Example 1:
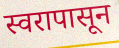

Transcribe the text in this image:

स्वरापासून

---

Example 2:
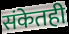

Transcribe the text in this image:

संकेतही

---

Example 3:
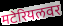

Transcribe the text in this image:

मटेरियलवर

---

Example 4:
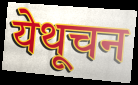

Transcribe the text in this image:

येथूचन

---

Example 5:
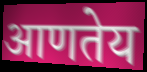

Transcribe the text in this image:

आणतेय